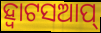
ହ୍ବାଟସଆପ୍